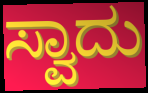
ಸ್ವಾದು